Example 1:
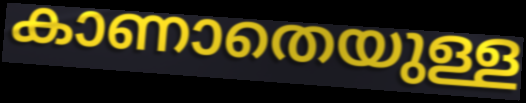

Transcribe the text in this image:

കാണാതെയുള്ള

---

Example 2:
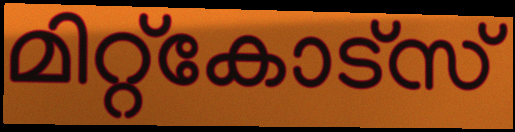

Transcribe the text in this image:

മിറ്റ്കോട്സ്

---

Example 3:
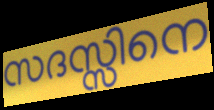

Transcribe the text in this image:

സദസ്സിനെ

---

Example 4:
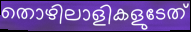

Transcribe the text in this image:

തൊഴിലാളികളുടേത്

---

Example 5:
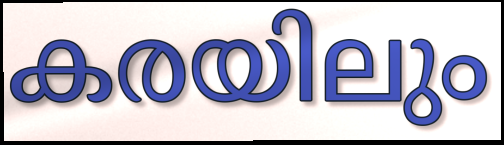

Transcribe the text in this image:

കരയിലും